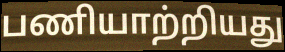
பணியாற்றியது